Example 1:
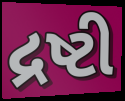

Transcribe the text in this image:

દ્રષ્ટી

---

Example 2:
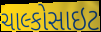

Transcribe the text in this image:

ચાલ્કોસાઇટ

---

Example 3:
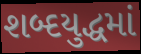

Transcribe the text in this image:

શબ્દયુદ્ધમાં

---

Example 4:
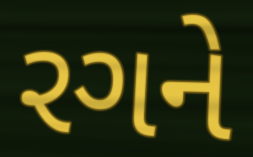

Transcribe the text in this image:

રગને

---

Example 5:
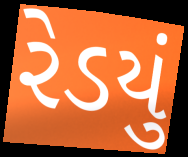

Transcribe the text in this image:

રેડયું